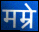
मम्रे